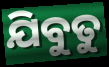
ଯିବୁତୁ